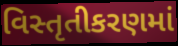
વિસ્તૃતીકરણમાં